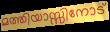
മത്തിയാസ്സിനോട്